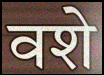
वशे